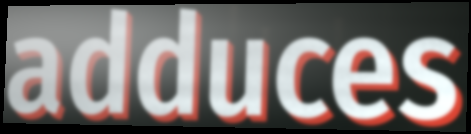
adduces